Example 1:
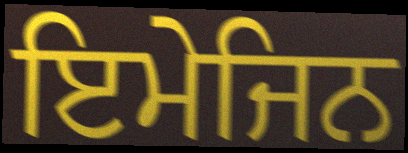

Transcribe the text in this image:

ਇਮੇਜਿਨ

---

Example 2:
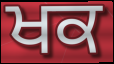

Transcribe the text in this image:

ਖਕ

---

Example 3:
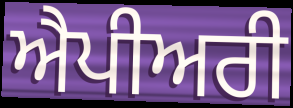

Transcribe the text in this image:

ਐਪੀਅਰੀ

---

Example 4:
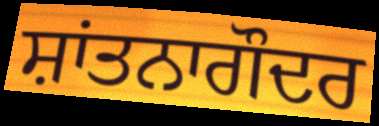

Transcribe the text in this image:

ਸ਼ਾਂਤਨਾਗੌਦਰ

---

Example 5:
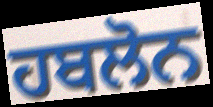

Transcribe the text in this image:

ਹਬਲੋਨ